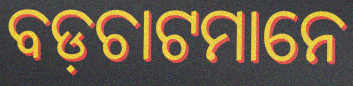
ବଡ଼ଚାଟମାନେ